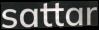
sattar